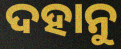
ଦହାନୁ